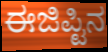
ಈಜಿಪ್ಟಿನ